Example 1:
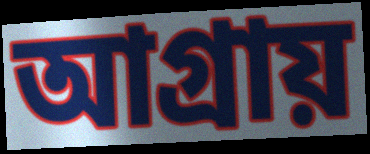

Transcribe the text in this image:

আগ্রায়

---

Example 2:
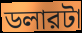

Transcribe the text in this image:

ডলারটা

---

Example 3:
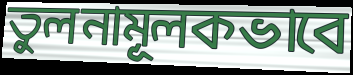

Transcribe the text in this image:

তুলনামূলকভাবে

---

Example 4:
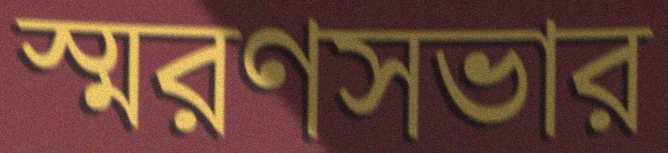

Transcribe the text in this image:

স্মরণসভার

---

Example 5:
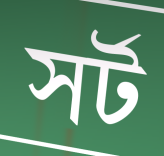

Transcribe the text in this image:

সর্ট